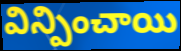
విన్పించాయి